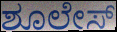
ಶೂಲೇಸ್